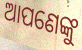
ଆପଣେଙ୍କୁ